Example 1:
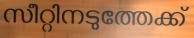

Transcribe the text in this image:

സീറ്റിനടുത്തേക്ക്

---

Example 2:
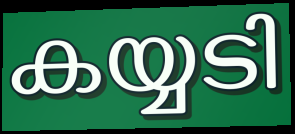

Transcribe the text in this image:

കയ്യടി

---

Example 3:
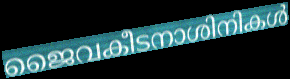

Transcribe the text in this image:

ജൈവകീടനാശിനികൾ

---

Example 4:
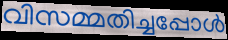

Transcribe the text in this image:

വിസമ്മതിച്ചപ്പോൾ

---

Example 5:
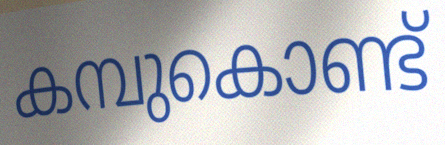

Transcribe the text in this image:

കമ്പുകൊണ്ട്